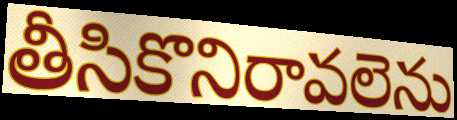
తీసికొనిరావలెను